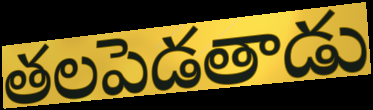
తలపెడతాడు